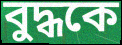
বুদ্ধকে